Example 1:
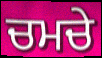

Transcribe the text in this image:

ਚਮਚੇ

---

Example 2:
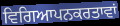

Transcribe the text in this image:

ਵਿਗਿਆਪਨਕਰਤਾਵਾਂ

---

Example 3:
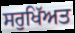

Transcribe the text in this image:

ਸਰੁਖਿੱਅਤ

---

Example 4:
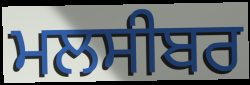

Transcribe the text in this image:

ਮਲਸੀਬਰ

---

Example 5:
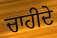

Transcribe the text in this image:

ਚਾਹੀਦੇ